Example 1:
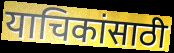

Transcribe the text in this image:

याचिकांसाठी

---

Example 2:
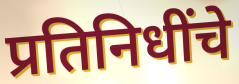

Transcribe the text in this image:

प्रतिनिधींचे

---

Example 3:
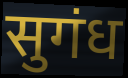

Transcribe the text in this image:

सुगंध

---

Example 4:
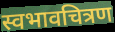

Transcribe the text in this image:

स्वभावचित्रण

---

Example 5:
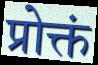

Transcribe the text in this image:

प्रोक्तं